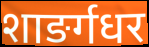
शाङर्गधर